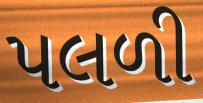
પલળી